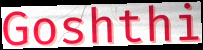
Goshthi